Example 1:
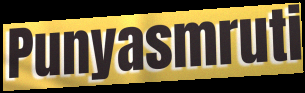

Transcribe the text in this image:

Punyasmruti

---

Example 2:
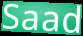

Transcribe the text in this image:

Saad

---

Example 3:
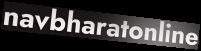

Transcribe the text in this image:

navbharatonline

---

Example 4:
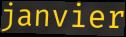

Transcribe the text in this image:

janvier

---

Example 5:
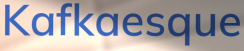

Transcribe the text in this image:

Kafkaesque